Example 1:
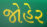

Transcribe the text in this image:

જોહેર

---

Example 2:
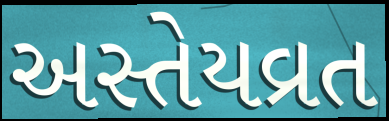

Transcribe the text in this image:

અસ્તેયવ્રત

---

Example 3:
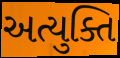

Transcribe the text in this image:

અત્યુક્તિ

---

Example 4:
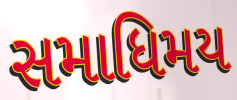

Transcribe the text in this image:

સમાધિમય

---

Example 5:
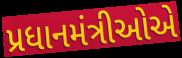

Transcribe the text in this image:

પ્રધાનમંત્રીઓએ